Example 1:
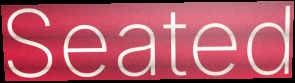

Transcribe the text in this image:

Seated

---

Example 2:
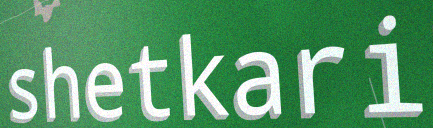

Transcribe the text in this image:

shetkari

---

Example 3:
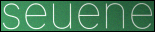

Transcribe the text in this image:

seuene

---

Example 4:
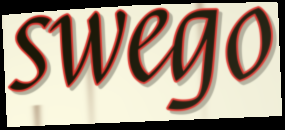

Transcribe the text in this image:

swego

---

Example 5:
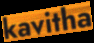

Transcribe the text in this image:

kavitha